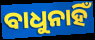
ବାଧୁନାହିଁ